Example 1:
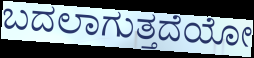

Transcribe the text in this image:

ಬದಲಾಗುತ್ತದೆಯೋ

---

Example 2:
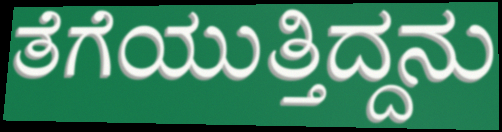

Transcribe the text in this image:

ತೆಗೆಯುತ್ತಿದ್ದನು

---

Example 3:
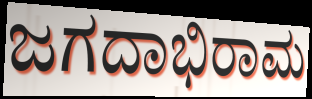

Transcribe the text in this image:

ಜಗದಾಭಿರಾಮ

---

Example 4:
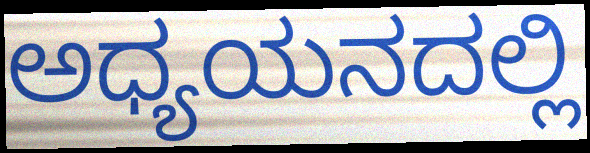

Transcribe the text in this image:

ಅಧ್ಯಯನದಲ್ಲಿ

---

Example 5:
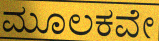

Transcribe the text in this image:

ಮೂಲಕವೇ